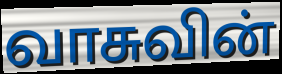
வாசுவின்